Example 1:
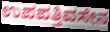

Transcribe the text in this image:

ಉಪಪತ್ತಿವಸೇನ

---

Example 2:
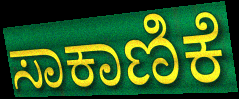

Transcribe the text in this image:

ಸಾಕಾಣಿಕೆ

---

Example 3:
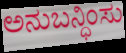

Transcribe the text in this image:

ಅನುಬನ್ಧಿಂಸು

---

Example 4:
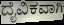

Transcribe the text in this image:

ದೈವಿಕವಾಗಿ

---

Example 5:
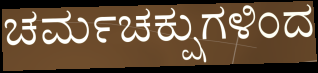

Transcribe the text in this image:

ಚರ್ಮಚಕ್ಷುಗಳಿಂದ